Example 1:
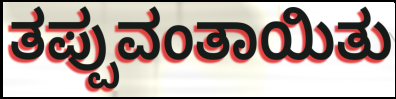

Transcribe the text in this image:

ತಪ್ಪುವಂತಾಯಿತು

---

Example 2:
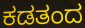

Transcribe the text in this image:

ಕಡತಂದ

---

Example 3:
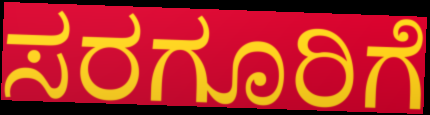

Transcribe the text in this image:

ಸರಗೂರಿಗೆ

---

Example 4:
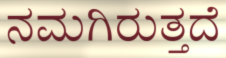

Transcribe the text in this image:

ನಮಗಿರುತ್ತದೆ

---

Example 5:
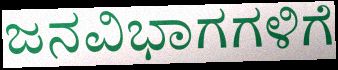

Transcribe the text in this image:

ಜನವಿಭಾಗಗಳಿಗೆ